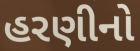
હરણીનો